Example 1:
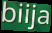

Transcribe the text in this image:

biija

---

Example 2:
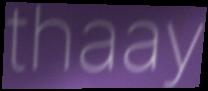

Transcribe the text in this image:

thaay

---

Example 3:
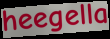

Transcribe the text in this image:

heegella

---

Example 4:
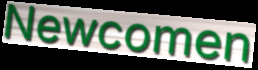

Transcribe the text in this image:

Newcomen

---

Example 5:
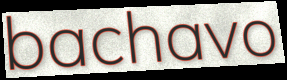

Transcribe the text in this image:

bachavo